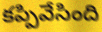
కప్పివేసింది